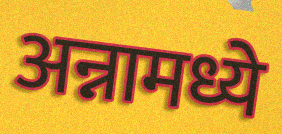
अन्नामध्ये